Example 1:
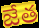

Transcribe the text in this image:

జేత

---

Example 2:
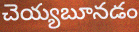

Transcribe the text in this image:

చెయ్యబూనడం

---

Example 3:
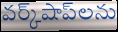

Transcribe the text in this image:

వర్క్‌షాప్‌లను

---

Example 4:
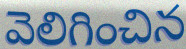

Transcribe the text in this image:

వెలిగించిన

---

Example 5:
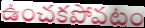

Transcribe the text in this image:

ఉంచకపోవటం